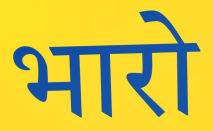
भारो